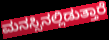
ಮನಸ್ಸಿನಲ್ಲಿಡುತ್ತಾರೆ